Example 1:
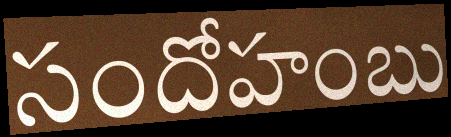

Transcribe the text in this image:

సందోహంబు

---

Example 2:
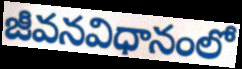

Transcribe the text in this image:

జీవనవిధానంలో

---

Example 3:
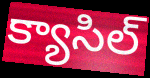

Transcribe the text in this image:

క్యాసిల్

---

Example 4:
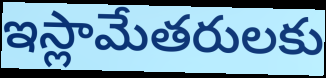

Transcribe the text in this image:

ఇస్లామేతరులకు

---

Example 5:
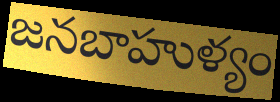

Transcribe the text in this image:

జనబాహుళ్యం